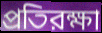
প্রতিরক্ষা